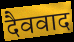
दैववाद